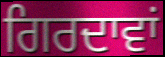
ਗਿਰਦਾਵਾਂ